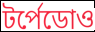
টর্পেডোও